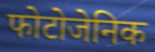
फोटोजेनिक